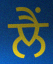
ਲੈਂ